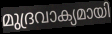
മുദ്രവാക്യമായി